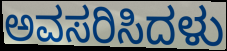
ಅವಸರಿಸಿದಳು